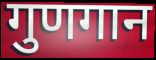
गुणगान